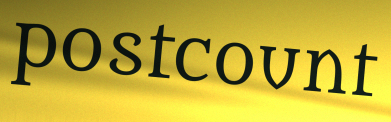
postcount